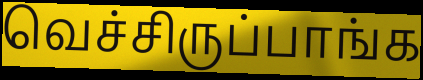
வெச்சிருப்பாங்க